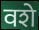
वशे